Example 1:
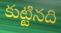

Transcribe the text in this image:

కుట్టినది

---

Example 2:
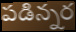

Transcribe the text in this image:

పడిన్నర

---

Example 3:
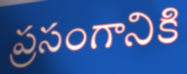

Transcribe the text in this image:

ప్రసంగానికి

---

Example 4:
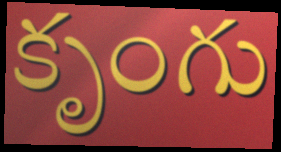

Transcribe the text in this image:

కృంగు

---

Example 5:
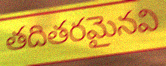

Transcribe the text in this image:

తదితరమైనవి